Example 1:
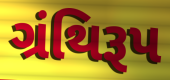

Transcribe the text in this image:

ગ્રંથિરૂપ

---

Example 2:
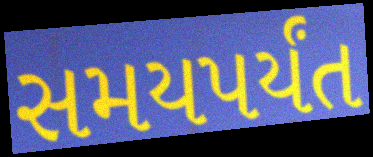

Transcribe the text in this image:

સમયપર્યંત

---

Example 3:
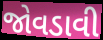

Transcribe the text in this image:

જોવડાવી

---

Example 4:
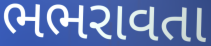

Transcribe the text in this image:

ભભરાવતા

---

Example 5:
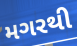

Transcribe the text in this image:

મગરથી